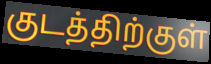
குடத்திற்குள்